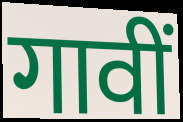
गावीं